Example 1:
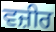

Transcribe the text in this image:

ਵਜ਼ੀਰ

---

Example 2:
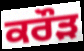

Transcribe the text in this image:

ਕਰੌੜ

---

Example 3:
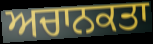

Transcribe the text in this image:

ਅਚਾਨਕਤਾ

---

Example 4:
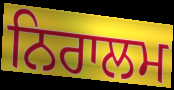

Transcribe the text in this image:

ਨਿਰਾਲਮ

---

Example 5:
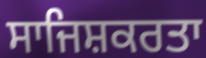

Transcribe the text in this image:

ਸਾਜਿਸ਼ਕਰਤਾ